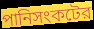
পানিসংকটের